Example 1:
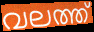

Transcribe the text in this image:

വലത്ത്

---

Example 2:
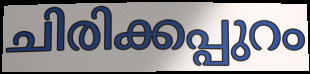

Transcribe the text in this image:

ചിരിക്കപ്പുറം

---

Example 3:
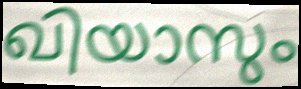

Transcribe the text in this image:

ഖിയാസും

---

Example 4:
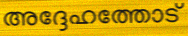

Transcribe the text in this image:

അദ്ദേഹത്തോട്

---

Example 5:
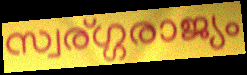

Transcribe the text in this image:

സ്വര്ഗ്ഗരാജ്യം